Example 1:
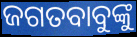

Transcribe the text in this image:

ଜଗତବାବୁଙ୍କୁ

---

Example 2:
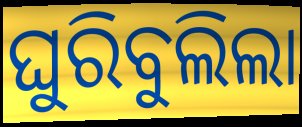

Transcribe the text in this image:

ଘୁରିବୁଲିଲା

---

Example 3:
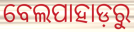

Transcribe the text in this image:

ବେଲପାହାଡ଼ରୁ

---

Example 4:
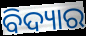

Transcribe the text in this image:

ବିଦ୍ୟାର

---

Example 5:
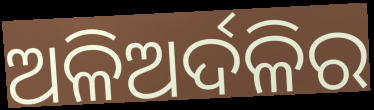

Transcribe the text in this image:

ଅଳିଅର୍ଦଳିର